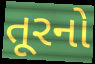
તૂરનો